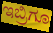
ಇಬ್ರಿಗೂ